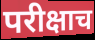
परीक्षाच